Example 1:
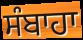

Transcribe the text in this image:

ਸੰਬਾਹਾ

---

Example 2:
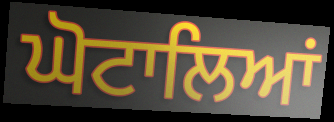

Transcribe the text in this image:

ਘੋਟਾਲਿਆਂ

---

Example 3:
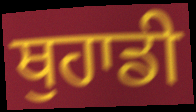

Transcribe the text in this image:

ਥੁਹਾਡੀ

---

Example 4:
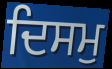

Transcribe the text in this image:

ਦਿਸਮੁ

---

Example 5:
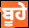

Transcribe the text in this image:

ਬੂਹੇ